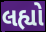
લહ્યો